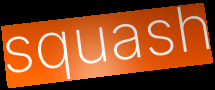
squash